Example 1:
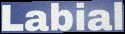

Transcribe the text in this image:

Labial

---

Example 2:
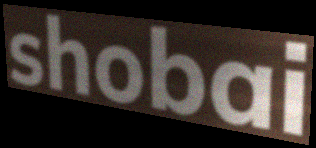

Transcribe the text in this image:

shobai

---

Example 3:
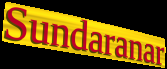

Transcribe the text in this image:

Sundaranar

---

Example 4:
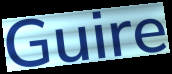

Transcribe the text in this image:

Guire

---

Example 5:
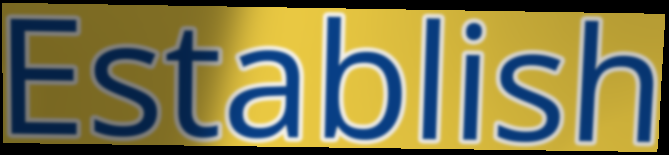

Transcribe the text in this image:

Establish